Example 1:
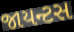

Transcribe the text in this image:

જાયન્ટસ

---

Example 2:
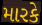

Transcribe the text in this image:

મારકે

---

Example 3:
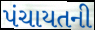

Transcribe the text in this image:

પંચાયતની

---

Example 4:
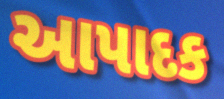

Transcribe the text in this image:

આપાદક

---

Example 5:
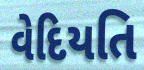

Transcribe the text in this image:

વેદિયતિ